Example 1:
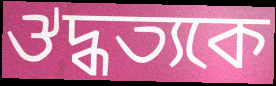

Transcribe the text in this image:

ঔদ্ধত্যকে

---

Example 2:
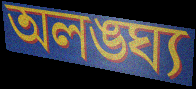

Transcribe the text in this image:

অলঙ্ঘ্য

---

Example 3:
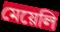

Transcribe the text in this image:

মেয়েলি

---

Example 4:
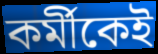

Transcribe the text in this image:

কর্মীকেই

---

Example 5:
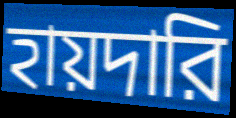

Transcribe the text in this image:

হায়দারি